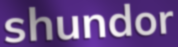
shundor